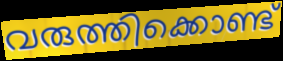
വരുത്തിക്കൊണ്ട്